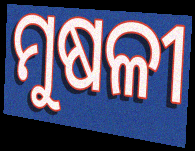
ମୁଷଳୀ